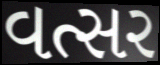
વત્સર